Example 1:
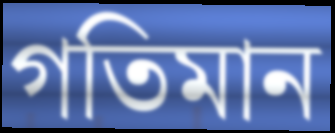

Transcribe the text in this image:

গতিমান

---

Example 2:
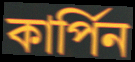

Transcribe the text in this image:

কার্পিন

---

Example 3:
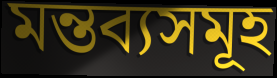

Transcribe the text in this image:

মন্তব্যসমূহ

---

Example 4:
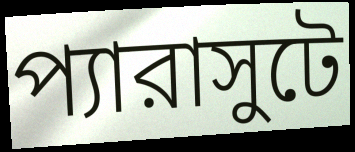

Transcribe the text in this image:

প্যারাসুটে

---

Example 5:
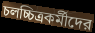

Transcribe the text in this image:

চলচ্চিত্রকর্মীদের